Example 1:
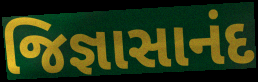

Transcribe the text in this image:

જિજ્ઞાસાનંદ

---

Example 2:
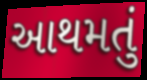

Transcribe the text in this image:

આથમતું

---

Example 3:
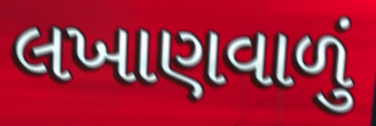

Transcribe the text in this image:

લખાણવાળું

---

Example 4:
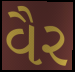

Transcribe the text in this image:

વૈર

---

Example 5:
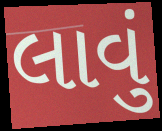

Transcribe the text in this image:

લાવું